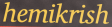
hemikrish